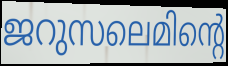
ജറുസലെമിന്റെ